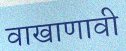
वाखाणावी